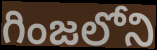
గింజలోని